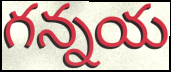
గన్నయ